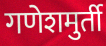
गणेशमुर्ती